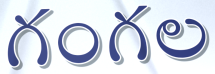
గంగల